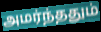
அமர்ந்ததும்